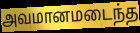
அவமானமடைந்த